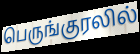
பெருங்குரலில்